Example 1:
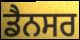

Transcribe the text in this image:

ਡੈਨਸਰ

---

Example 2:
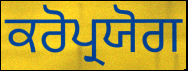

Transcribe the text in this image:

ਕਰੋਪ੍ਰਯੋਗ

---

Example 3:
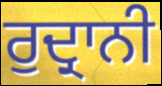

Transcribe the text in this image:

ਰੁਦ੍ਰਾਨੀ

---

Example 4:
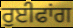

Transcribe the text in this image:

ਰੁਈਫਾਂਗ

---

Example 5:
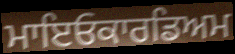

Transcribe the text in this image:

ਮਾਇਓਕਾਰਡਿਅਮ